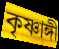
কৃষ্ণাঙ্গী